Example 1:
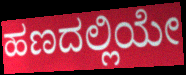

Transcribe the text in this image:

ಹಣದಲ್ಲಿಯೇ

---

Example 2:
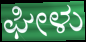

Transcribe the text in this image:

ಘೀಳು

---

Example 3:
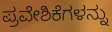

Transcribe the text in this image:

ಪ್ರವೇಶಿಕೆಗಳನ್ನು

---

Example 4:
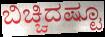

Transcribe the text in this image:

ಬಿಚ್ಚಿದಷ್ಟೂ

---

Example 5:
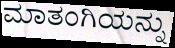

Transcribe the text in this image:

ಮಾತಂಗಿಯನ್ನು